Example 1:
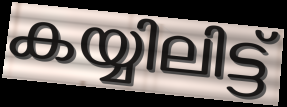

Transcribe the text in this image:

കയ്യിലിട്ട്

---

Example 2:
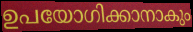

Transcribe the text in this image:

ഉപയോഗിക്കാനാകും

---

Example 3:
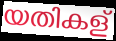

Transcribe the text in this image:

യതികള്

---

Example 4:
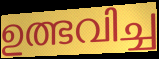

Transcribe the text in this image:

ഉത്ഭവിച്ച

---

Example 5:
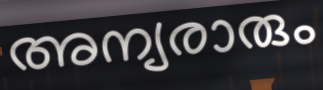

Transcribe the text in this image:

അന്യരാരും